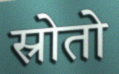
स्रोतो